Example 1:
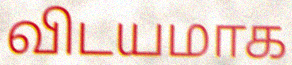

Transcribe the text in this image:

விடயமாக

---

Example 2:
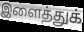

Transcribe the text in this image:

இளைத்துக்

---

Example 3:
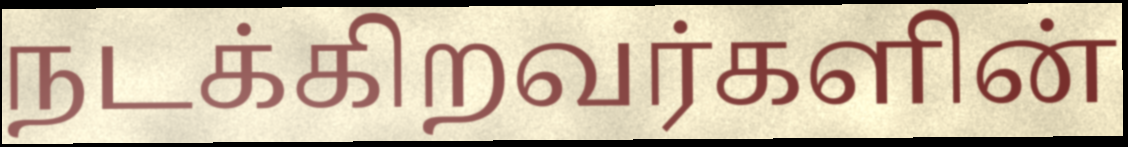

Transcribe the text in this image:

நடக்கிறவர்களின்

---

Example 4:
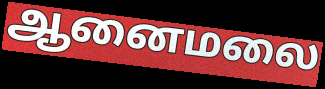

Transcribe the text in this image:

ஆனைமலை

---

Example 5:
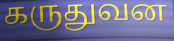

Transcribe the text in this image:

கருதுவன